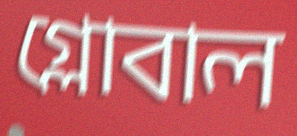
গ্লোবাল